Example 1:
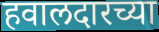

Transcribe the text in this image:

हवालदारच्या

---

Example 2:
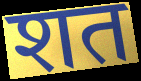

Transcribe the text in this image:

शत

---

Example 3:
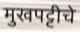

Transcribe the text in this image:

मुखपट्टीचे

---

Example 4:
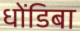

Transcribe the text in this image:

धोंडिबा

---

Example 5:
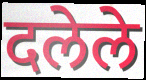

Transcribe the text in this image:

दलेले